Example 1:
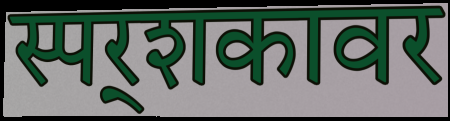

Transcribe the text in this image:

स्पर्शकावर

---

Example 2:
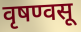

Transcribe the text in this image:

वृषण्वसू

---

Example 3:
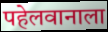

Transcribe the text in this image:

पहेलवानाला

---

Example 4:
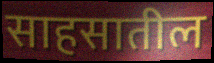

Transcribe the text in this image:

साहसातील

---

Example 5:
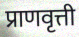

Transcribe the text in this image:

प्राणवृत्ती